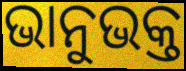
ଭାନୁଭକ୍ତ